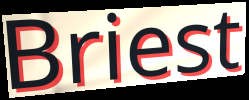
Briest